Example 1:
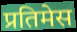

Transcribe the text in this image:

प्रतिमेस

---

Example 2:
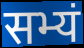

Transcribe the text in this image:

सभ्यं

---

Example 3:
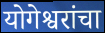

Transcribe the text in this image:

योगेश्वरांचा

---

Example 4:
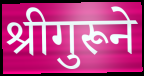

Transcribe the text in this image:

श्रीगुरूने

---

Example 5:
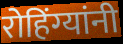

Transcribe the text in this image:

रोहिंग्यांनी